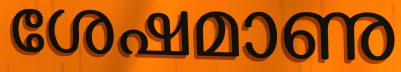
ശേഷമാണു